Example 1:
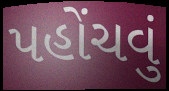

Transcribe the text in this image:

પહોંચવું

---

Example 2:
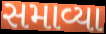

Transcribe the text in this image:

સમાવ્યા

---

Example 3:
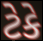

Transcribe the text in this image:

ટેકે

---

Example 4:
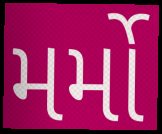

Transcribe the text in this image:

મર્મો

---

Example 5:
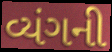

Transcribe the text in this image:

વ્યંગની